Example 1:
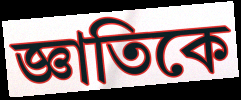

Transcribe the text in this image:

জ্ঞাতিকে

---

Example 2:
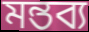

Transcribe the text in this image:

মন্তব্য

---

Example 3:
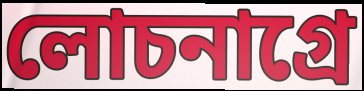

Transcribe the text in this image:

লোচনাগ্রে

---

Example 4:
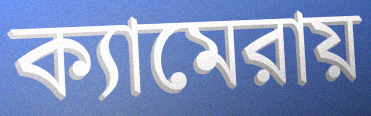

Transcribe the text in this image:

ক্যামেরায়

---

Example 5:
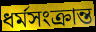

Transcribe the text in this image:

ধর্মসংক্রান্ত